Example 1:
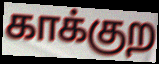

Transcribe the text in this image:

காக்குற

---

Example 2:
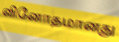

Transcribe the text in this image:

வினோதமானது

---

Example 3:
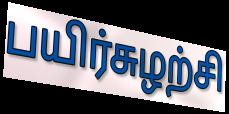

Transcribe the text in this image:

பயிர்சுழற்சி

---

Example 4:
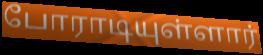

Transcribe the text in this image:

போராடியுள்ளார்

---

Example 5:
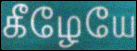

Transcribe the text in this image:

கீழேயே